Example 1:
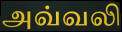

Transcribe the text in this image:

அவ்வலி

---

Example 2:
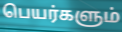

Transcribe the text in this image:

பெயர்களும்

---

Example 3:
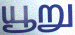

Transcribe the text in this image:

யூறு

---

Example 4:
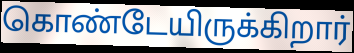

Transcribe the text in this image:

கொண்டேயிருக்கிறார்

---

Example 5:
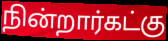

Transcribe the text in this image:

நின்றார்கட்கு